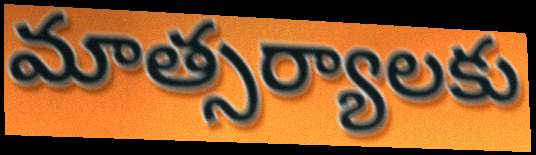
మాత్సర్యాలకు